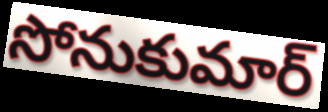
సోనుకుమార్